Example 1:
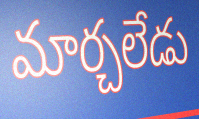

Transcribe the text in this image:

మార్చలేడు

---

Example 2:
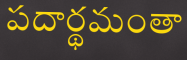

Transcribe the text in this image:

పదార్థమంతా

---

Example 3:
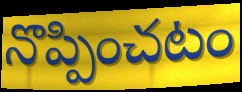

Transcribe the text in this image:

నొప్పించటం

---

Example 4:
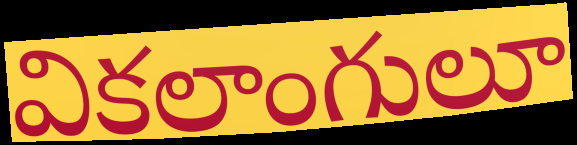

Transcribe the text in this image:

వికలాంగులూ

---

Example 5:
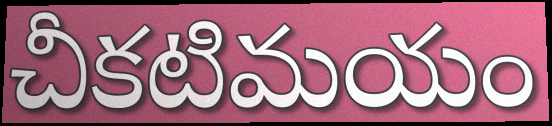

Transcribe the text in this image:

చీకటిమయం